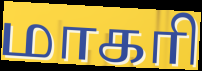
மாகரி